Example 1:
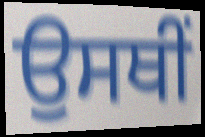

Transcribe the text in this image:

ਉਸਥੀਂ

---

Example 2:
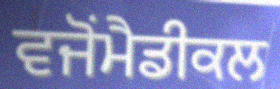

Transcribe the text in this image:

ਵਜੋਂਮੈਡੀਕਲ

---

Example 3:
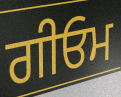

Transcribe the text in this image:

ਗੀਓਮ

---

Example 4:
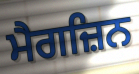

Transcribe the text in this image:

ਮੈਗਜ਼ਿਨ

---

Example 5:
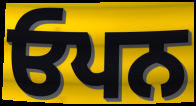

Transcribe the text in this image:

ਓਪਨ